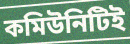
কমিউনিটিই